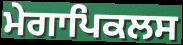
ਮੇਗਾਪਿਕਲਸ